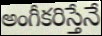
అంగీకరిస్తేనే